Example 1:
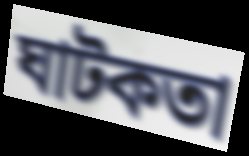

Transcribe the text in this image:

ঘাটকতা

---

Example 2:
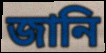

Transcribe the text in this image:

জানি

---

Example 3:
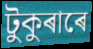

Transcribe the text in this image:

টুকুৰাৰে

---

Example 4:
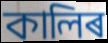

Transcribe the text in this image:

কালিৰ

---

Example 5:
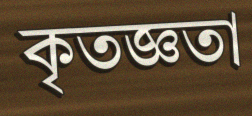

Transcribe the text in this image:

কৃতজ্ঞতা